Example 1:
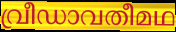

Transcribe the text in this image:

വ്രീഡാവതീമഥ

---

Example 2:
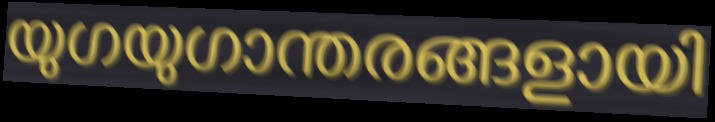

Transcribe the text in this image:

യുഗയുഗാന്തരങ്ങളായി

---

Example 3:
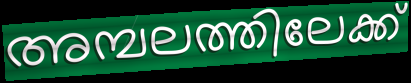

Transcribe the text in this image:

അമ്പലത്തിലേക്ക്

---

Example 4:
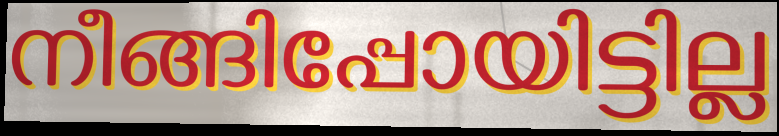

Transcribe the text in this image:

നീങ്ങിപ്പോയിട്ടില്ല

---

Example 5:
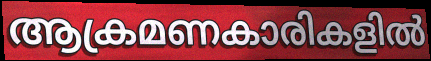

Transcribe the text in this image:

ആക്രമണകാരികളിൽ